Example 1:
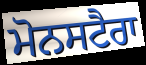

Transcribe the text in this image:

ਮੋਨਸਟੈਰਾ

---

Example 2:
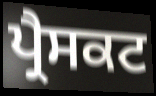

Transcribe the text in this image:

ਪ੍ਰੈਸਕਟ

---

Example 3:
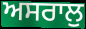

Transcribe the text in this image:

ਅਸਰਾਲੁ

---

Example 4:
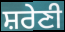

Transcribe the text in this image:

ਸ਼ਰੇਣੀ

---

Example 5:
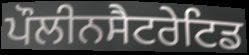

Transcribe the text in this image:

ਪੌਲੀਨਸੈਟਰੇਟਿਡ